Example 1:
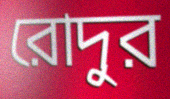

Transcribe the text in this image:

রোদুর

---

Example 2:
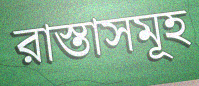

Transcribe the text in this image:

রাস্তাসমূহ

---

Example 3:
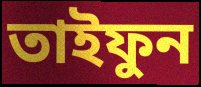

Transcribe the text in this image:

তাইফুন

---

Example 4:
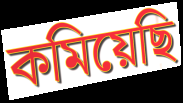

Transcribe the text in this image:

কমিয়েছি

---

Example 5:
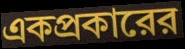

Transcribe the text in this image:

একপ্রকারের